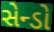
સેન્ડો